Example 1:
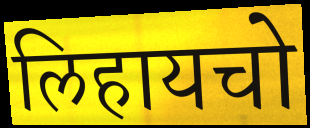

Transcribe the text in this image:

लिहायचो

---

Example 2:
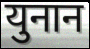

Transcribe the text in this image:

युनान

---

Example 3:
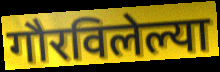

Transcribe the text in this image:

गौरविलेल्या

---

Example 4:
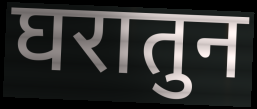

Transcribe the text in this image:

घरातुन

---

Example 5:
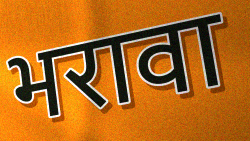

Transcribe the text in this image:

भरावा